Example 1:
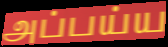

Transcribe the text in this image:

அப்பய்ய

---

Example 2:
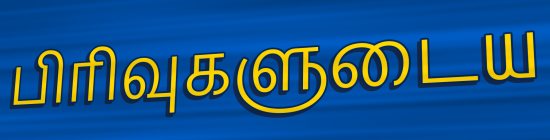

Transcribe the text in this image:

பிரிவுகளுடைய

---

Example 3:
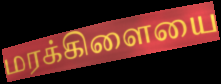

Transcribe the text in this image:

மரக்கிளையை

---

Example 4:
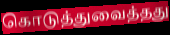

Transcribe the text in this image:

கொடுத்துவைத்தது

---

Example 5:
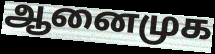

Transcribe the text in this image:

ஆனைமுக